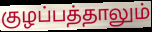
குழப்பத்தாலும்